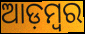
ଆଡ଼ମ୍ୱର